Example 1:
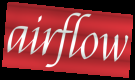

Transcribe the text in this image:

airflow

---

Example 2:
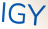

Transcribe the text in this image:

IGY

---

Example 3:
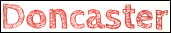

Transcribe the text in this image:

Doncaster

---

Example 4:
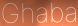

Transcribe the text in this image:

Ghaba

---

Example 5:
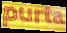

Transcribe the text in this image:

purta